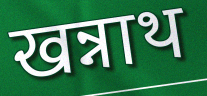
खन्नाथ